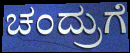
ಚಂದ್ರುಗೆ